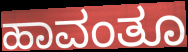
ಹಾವಂತೂ